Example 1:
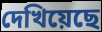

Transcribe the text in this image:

দেখিয়েছে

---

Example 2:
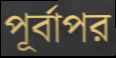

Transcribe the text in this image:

পূর্বাপর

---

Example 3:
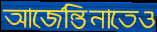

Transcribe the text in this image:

আর্জেন্তিনাতেও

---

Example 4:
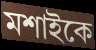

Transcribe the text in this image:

মশাইকে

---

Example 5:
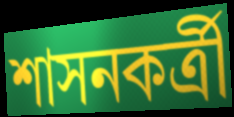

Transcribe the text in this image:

শাসনকর্ত্রী